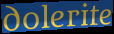
dolerite